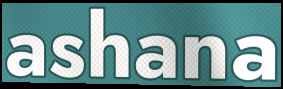
ashana